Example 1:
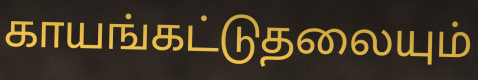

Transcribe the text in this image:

காயங்கட்டுதலையும்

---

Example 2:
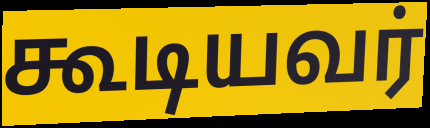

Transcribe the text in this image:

கூடியவர்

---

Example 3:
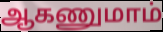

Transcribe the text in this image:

ஆகணுமாம்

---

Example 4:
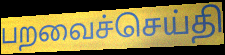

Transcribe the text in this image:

பறவைச்செய்தி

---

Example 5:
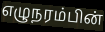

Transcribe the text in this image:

எழுநரம்பின்